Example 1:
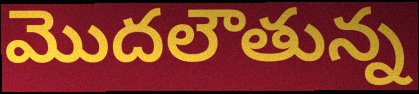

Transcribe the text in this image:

మొదలౌతున్న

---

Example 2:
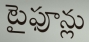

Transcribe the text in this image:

టైఫూన్లు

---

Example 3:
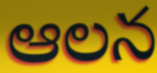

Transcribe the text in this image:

ఆలన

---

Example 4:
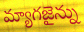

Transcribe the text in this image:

మ్యాగజైన్ను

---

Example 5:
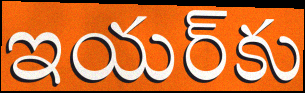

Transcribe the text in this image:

ఇయర్‌కు